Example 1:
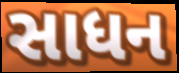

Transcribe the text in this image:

સાધન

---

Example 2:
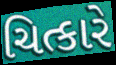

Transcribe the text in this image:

ચિત્કારે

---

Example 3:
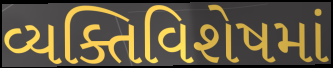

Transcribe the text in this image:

વ્યક્તિવિશેષમાં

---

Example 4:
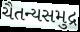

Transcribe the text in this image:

ચૈતન્યસમુદ્ર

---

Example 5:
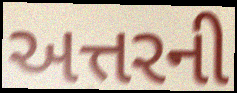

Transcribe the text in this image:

અત્તરની